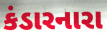
કંડારનારા